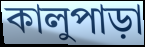
কালুপাড়া